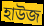
হাউজ